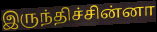
இருந்திச்சின்னா